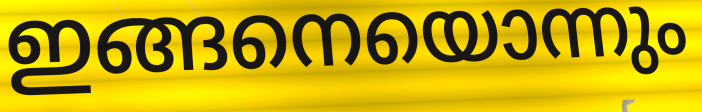
ഇങ്ങനെയൊന്നും